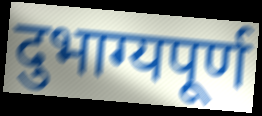
दुभाग्यपूर्ण